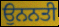
ਉਨਨਤੀ